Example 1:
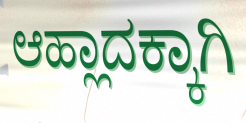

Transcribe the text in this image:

ಆಹ್ಲಾದಕ್ಕಾಗಿ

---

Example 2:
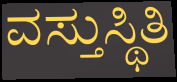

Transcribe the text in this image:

ವಸ್ತುಸ್ಥಿತಿ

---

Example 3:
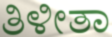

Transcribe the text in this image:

ತಿಳೀತಾ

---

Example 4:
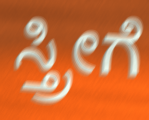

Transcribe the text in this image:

ಸ್ತ್ರೀಗೆ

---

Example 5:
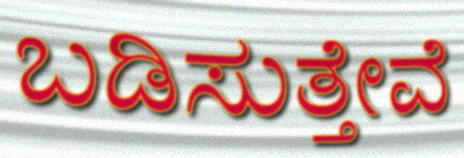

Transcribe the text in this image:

ಬಡಿಸುತ್ತೇವೆ